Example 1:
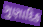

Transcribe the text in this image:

ગુણાદિક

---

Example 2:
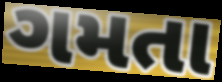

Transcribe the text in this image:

ગમતા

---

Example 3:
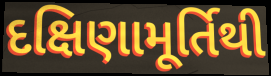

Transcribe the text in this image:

દક્ષિણામૂર્તિથી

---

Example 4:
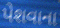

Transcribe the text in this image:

પેશવાના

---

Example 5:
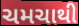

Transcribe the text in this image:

ચમચાથી